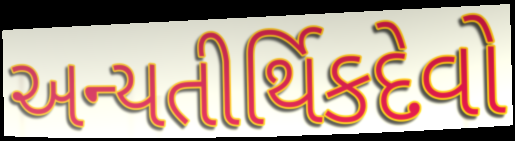
અન્યતીર્થિકદેવો